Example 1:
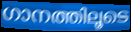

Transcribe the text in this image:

ഗാനത്തിലൂടെ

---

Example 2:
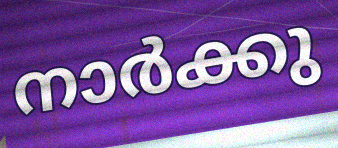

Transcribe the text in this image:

നാർക്കു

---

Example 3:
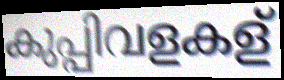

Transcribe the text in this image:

കുപ്പിവളകള്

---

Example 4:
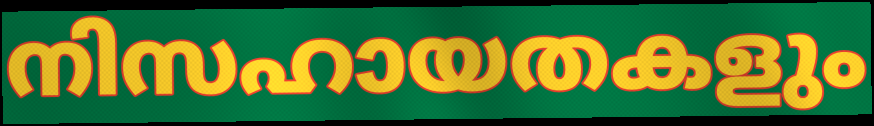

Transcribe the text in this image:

നിസഹായതകളും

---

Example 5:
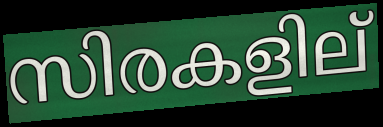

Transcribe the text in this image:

സിരകളില്